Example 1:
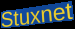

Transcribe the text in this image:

Stuxnet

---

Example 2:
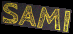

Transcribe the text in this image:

SAMI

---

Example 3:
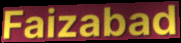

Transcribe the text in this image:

Faizabad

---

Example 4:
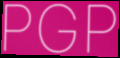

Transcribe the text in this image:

PGP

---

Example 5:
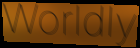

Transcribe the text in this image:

Worldly